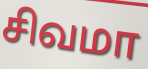
சிவமா